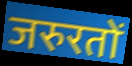
जरुरतों